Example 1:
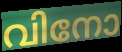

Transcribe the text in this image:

വിനോ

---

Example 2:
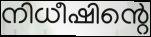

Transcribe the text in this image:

നിധീഷിന്റെ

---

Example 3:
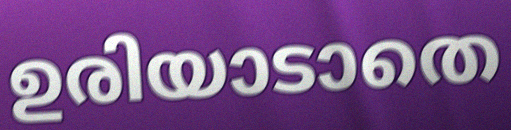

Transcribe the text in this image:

ഉരിയാടാതെ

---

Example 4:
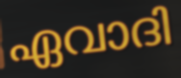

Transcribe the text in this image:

ഏവാദി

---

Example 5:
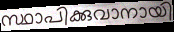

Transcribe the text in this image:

സ്ഥാപിക്കുവാനായി